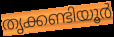
തൃക്കണ്ടിയൂർ